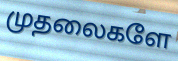
முதலைகளே